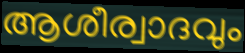
ആശീര്വാദവും